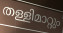
തള്ളിമാറ്റും